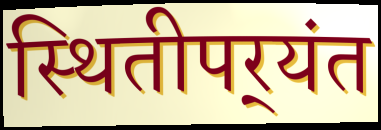
स्थितीपर्यंत